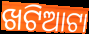
ଖଟିଆଟା